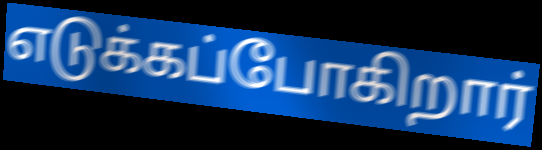
எடுக்கப்போகிறார்